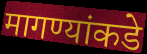
मागण्यांकडे